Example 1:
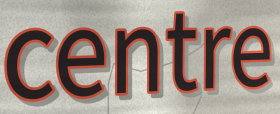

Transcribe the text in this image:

centre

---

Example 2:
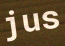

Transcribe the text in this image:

jus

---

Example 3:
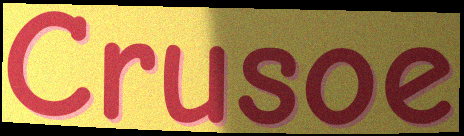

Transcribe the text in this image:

Crusoe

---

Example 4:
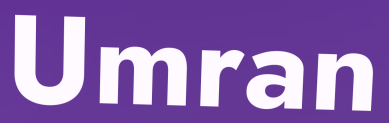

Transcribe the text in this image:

Umran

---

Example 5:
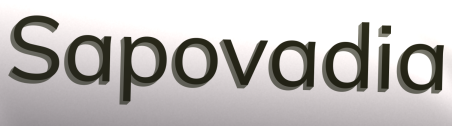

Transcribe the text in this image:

Sapovadia